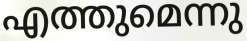
എത്തുമെന്നു